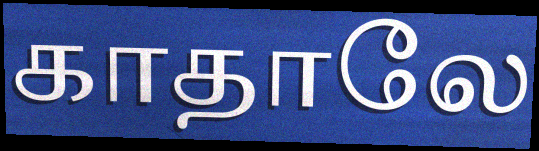
காதாலே